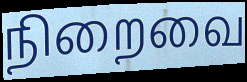
நிறைவை